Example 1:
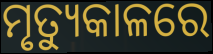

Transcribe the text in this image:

ମୃତ୍ୟୁକାଳରେ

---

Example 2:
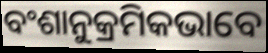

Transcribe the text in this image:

ବଂଶାନୁକ୍ରମିକଭାବେ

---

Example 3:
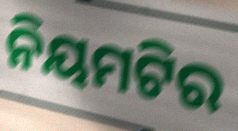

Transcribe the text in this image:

ନିୟମଟିର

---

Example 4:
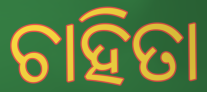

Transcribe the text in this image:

ଚାହିତା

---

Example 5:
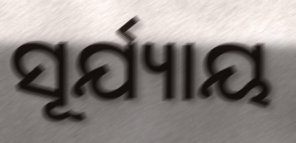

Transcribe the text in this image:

ସୂର୍ଯ୍ୟାୟ